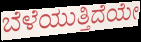
ಬೆಳೆಯುತ್ತಿದೆಯೇ